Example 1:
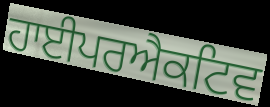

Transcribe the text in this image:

ਹਾਈਪਰਐਕਟਿਵ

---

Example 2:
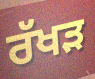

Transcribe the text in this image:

ਰੱਖੜ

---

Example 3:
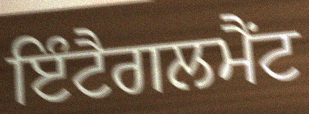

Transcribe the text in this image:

ਇੰਟੈਗਲਮੈਂਟ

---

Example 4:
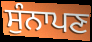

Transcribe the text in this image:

ਸੁੰਨਾਪਣ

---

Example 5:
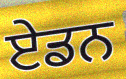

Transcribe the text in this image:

ਏਡਨ